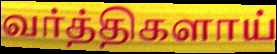
வர்த்திகளாய்